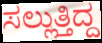
ಸಲ್ಲುತ್ತಿದ್ದ